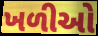
ખળીઓ